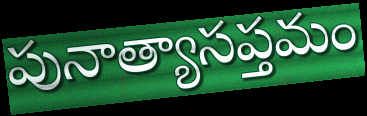
పునాత్యాసప్తమం